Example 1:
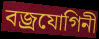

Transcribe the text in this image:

বজ্রযোগিনী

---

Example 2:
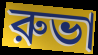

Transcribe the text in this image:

রুভা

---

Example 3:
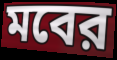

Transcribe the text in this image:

মবের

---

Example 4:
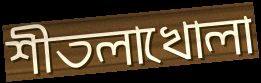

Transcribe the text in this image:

শীতলাখোলা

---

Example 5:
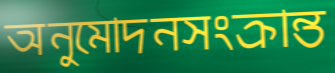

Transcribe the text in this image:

অনুমোদনসংক্রান্ত